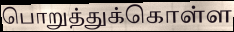
பொறுத்துக்கொள்ள